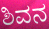
ಶಿವನ